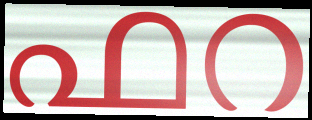
ഫറ